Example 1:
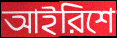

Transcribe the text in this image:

আইরিশে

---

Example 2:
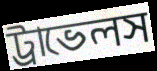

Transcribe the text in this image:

ট্রাভেলস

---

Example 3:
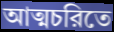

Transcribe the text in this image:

আত্মচরিতে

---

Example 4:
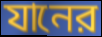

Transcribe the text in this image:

যানের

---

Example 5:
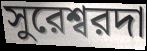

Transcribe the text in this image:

সুরেশ্বরদা